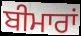
ਬੀਮਾਰਾਂ